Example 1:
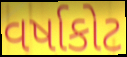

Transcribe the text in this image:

વર્ષાકોટ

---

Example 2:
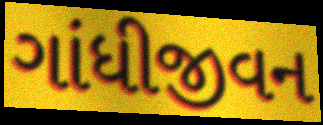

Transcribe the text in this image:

ગાંધીજીવન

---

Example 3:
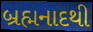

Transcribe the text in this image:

બ્રહ્મનાદથી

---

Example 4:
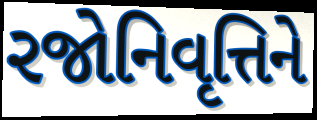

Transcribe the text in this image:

રજોનિવૃત્તિને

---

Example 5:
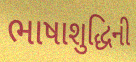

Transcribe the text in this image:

ભાષાશુદ્ધિની